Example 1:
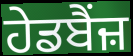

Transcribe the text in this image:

ਹੇਡਬੈਂਜ਼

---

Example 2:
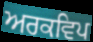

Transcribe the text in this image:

ਅਰਕਵਿਪ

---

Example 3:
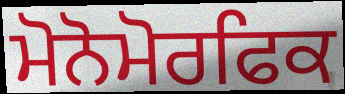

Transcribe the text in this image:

ਮੋਨੋਮੋਰਫਿਕ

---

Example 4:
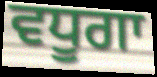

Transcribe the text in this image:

ਵਧੂਗਾ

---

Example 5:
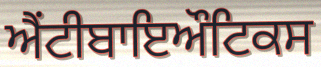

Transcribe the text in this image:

ਐਂਟੀਬਾਇਔਟਿਕਸ